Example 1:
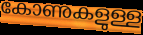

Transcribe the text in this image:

കോണുകളുള്ള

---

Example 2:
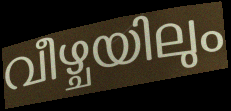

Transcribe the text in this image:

വീഴ്ചയിലും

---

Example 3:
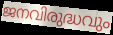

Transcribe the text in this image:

ജനവിരുദ്ധവും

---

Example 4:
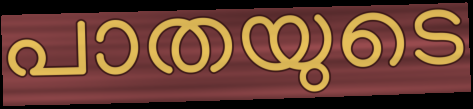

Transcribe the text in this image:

പാതയുടെ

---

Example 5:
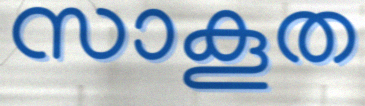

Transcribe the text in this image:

സാകൂത